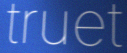
truet